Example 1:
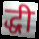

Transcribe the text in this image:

द्धी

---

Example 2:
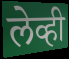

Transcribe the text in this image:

लेव्ही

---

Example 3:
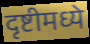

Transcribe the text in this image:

दृष्टीमध्ये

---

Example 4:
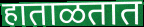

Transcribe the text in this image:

हाताळतात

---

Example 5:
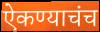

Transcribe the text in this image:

ऐकण्याचंच